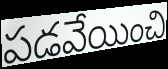
పడవేయించి